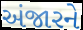
અંજારને